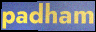
padham